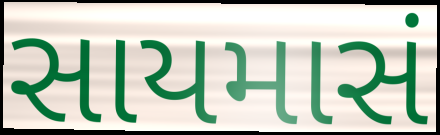
સાયમાસં